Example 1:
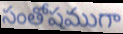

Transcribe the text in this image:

సంతోషముగా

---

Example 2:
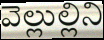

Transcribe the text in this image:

వెల్లుల్లిని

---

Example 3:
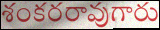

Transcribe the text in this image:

శంకరరావుగారు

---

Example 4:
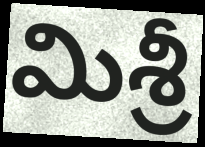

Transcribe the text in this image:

మిశ్రీ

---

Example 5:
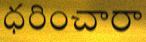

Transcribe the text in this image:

ధరించారా